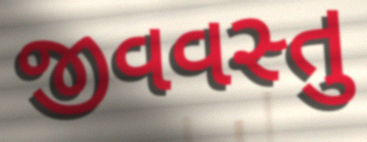
જીવવસ્તુ